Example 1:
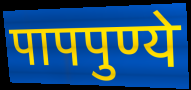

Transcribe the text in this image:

पापपुण्ये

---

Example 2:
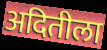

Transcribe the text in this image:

अदितीला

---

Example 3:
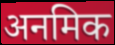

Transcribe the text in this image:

अनमिक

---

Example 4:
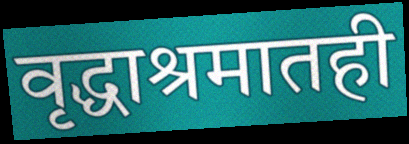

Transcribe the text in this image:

वृद्धाश्रमातही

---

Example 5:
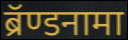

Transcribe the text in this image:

ब्रॅण्डनामा